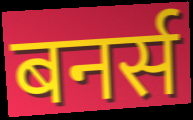
बनर्स